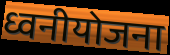
ध्वनीयोजना